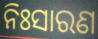
ନିଃସାରଣ